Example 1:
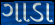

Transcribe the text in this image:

ગાડા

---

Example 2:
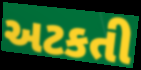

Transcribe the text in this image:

અટકતી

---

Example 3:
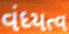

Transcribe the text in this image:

વંધ્યત્વ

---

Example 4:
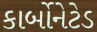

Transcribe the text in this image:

કાર્બોનેટેડ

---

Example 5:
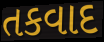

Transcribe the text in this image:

તકવાદ